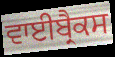
ਵਾਈਬ੍ਰੈਕਸ